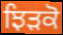
ਝਿੜਕੋ